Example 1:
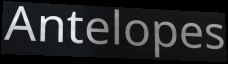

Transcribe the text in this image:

Antelopes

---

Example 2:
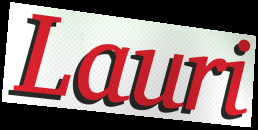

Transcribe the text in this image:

Lauri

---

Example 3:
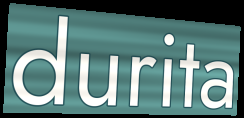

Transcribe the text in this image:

durita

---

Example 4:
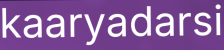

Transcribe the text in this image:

kaaryadarsi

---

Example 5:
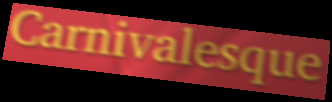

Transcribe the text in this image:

Carnivalesque